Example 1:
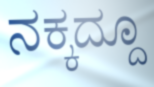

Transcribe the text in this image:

ನಕ್ಕದ್ದೂ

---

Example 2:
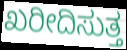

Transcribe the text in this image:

ಖರೀದಿಸುತ್ತ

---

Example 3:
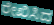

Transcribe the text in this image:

ರೇಖಿಸಿದ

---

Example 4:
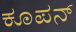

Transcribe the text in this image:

ಕೂಪನ್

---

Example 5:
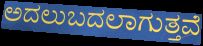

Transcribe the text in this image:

ಅದಲುಬದಲಾಗುತ್ತವೆ